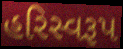
હરિસ્વરૂપ